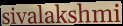
sivalakshmi